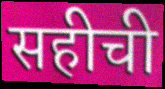
सहीची